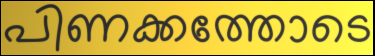
പിണക്കത്തോടെ